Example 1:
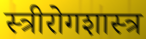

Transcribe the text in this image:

स्त्रीरोगशास्त्र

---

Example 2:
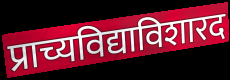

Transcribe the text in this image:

प्राच्यविद्याविशारद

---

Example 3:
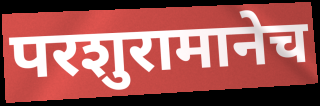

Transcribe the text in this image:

परशुरामानेच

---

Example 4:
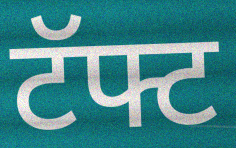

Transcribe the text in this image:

टॅफ्ट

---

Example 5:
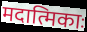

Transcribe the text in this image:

मदात्मिकाः